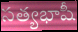
సత్యభాషీ